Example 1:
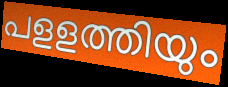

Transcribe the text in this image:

പളളത്തിയും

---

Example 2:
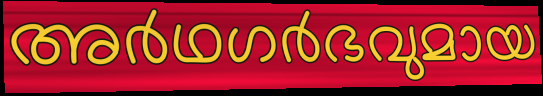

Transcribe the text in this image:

അർഥഗർഭവുമായ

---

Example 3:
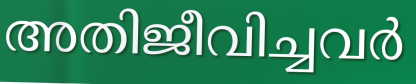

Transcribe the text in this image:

അതിജീവിച്ചവർ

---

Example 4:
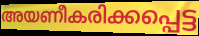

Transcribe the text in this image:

അയണീകരിക്കപ്പെട്ട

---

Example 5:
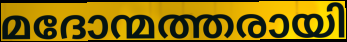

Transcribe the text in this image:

മദോന്മത്തരായി